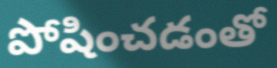
పోషించడంతో